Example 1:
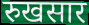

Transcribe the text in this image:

रुखसार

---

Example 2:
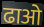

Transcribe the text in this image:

ढाओ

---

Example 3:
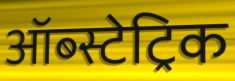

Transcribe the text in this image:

ऑब्स्टेट्रिक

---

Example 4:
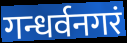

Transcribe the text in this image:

गन्धर्वनगरं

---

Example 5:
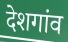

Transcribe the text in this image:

देशगांव